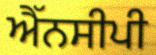
ਐੱਨਸੀਪੀ